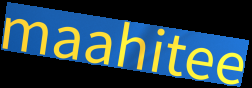
maahitee